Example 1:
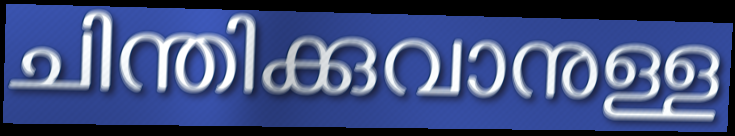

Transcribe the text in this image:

ചിന്തിക്കുവാനുള്ള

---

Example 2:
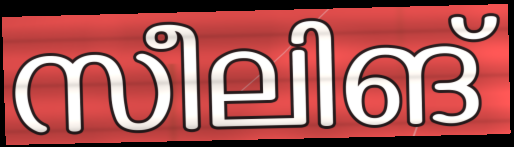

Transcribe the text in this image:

സീലിങ്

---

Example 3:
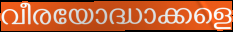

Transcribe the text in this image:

വീരയോദ്ധാക്കളെ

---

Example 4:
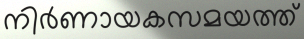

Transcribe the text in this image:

നിർണായകസമയത്ത്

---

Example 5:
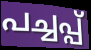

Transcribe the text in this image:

പച്ചപ്പ്